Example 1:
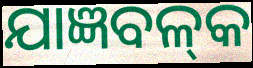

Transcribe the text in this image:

ଯାଜ୍ଞବଳ୍‍କ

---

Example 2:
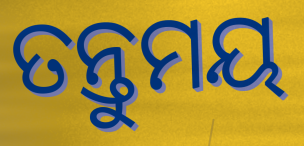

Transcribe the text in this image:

ତନ୍ତୁମୟ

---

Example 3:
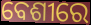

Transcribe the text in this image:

ବେଶୀରେ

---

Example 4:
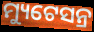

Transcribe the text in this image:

ମ୍ୟୁଟେସନ୍ର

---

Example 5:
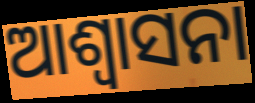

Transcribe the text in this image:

ଆଶ୍ୱାସନା